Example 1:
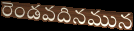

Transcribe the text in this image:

రెండవదినమున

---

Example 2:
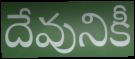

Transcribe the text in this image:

దేవునికీ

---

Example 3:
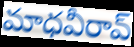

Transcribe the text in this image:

మాధవీరావ్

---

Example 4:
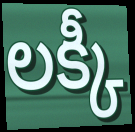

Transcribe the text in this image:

లక్కీ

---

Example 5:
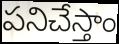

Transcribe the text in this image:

పనిచేస్తాం